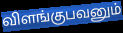
விளங்குபவனும்